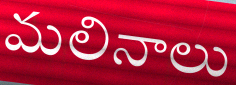
మలినాలు